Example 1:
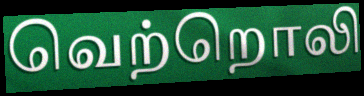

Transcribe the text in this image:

வெற்றொலி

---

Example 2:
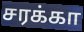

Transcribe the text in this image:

சரக்கா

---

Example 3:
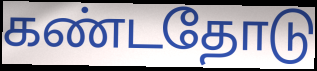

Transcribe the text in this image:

கண்டதோடு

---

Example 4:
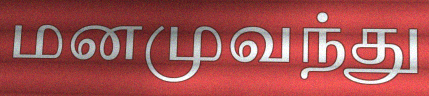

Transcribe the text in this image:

மனமுவந்து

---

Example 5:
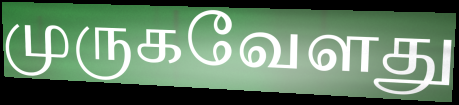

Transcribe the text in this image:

முருகவேளது